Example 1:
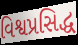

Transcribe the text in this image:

વિશ્વપ્રસિદ્ધ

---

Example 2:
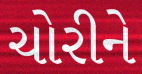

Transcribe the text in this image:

ચોરીને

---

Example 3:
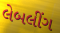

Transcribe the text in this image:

લેબલીંગ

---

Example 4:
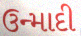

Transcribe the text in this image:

ઉન્માદી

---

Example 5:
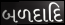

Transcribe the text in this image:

બળદાદિ